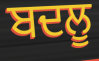
ਬਦਲੂ